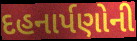
દહનાર્પણોની